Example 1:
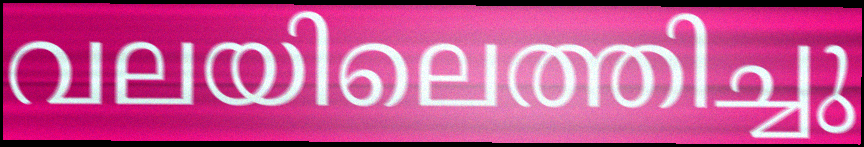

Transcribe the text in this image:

വലയിലെത്തിച്ചു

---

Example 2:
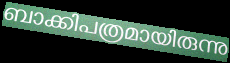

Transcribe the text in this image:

ബാക്കിപത്രമായിരുന്നു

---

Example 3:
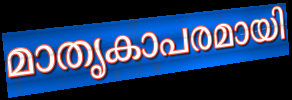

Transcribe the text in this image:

മാതൃകാപരമായി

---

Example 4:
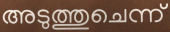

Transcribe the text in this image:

അടുത്തുചെന്ന്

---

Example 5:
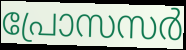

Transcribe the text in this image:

പ്രോസസർ